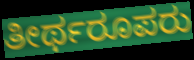
ತೀರ್ಥರೂಪರು